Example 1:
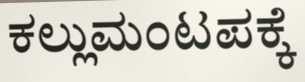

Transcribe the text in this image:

ಕಲ್ಲುಮಂಟಪಕ್ಕೆ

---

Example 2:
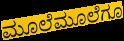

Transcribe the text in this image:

ಮೂಲೆಮೂಲೆಗೂ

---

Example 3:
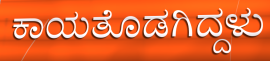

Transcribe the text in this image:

ಕಾಯತೊಡಗಿದ್ದಳು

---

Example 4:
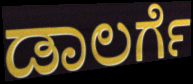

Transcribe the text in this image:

ಡಾಲರ್ಗೆ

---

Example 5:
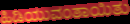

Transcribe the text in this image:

ಹಿಡಿಯುವಂತಾಯಿತು